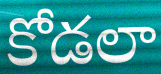
కోడలా